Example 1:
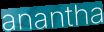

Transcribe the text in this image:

anantha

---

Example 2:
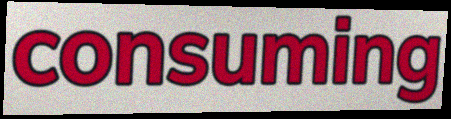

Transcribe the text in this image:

consuming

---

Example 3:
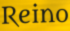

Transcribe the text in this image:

Reino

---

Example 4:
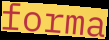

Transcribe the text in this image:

forma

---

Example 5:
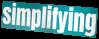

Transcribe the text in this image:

simplifying